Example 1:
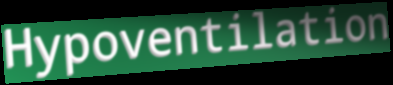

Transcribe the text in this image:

Hypoventilation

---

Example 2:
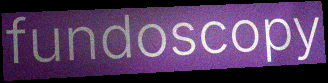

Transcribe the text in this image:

fundoscopy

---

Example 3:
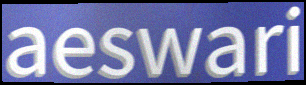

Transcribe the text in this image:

aeswari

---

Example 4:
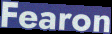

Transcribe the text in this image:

Fearon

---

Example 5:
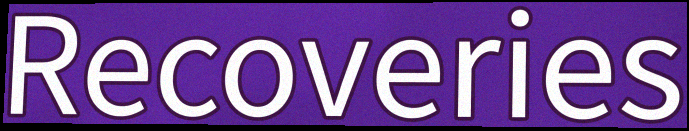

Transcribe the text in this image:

Recoveries